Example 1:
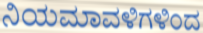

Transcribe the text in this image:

ನಿಯಮಾವಳಿಗಳಿಂದ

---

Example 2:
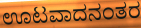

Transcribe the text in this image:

ಊಟವಾದನಂತರ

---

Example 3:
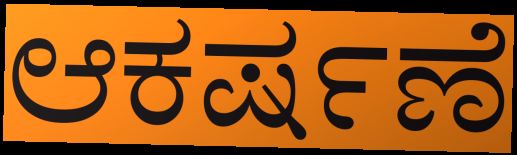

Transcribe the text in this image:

ಆಕರ್ಷಣೆ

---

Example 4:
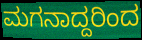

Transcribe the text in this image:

ಮಗನಾದ್ದರಿಂದ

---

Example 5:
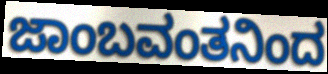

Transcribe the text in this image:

ಜಾಂಬವಂತನಿಂದ